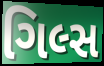
ગિલ્સ